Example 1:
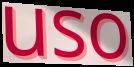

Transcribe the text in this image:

uso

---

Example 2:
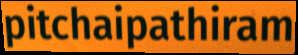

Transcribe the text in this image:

pitchaipathiram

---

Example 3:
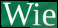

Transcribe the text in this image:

Wie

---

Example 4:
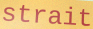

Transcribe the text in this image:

strait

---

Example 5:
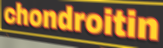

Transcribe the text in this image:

chondroitin